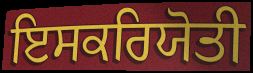
ਇਸਕਰਿਯੋਤੀ